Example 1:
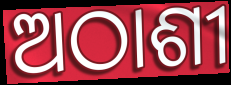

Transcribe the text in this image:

ଅଠାଶୀ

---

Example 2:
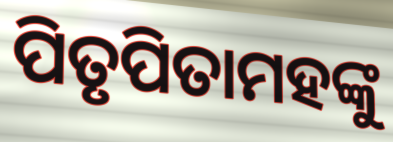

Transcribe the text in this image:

ପିତୃପିତାମହଙ୍କୁ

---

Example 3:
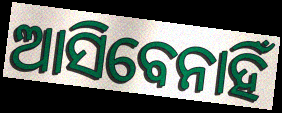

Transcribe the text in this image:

ଆସିବେନାହିଁ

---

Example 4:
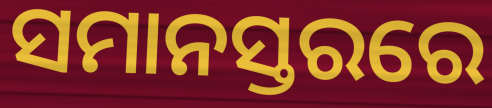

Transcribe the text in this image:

ସମାନସ୍ତରରେ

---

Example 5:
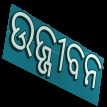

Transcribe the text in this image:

ଉଜ୍ଜୀବନ